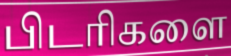
பிடரிகளை